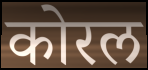
कोरल